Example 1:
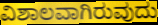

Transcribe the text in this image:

ವಿಶಾಲವಾಗಿರುವುದು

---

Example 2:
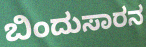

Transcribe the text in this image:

ಬಿಂದುಸಾರನ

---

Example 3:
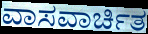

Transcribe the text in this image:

ವಾಸವಾರ್ಚಿತ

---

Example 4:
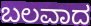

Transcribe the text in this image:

ಬಲವಾದ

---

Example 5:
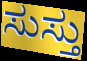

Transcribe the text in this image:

ಸುಸ್ತು